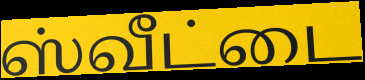
ஸ்வீட்டை